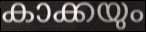
കാക്കയും